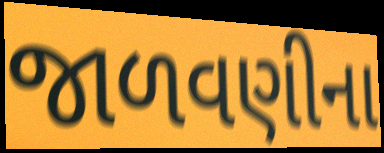
જાળવણીના